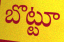
బొట్టూ